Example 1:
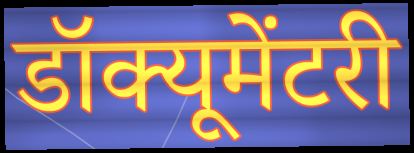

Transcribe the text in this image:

डॉक्यूमेंटरी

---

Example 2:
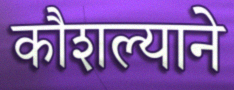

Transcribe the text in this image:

कौशल्याने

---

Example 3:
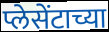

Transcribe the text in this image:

प्लेसेंटाच्या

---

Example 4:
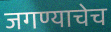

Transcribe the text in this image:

जगण्याचेच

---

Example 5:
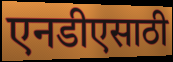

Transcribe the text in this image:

एनडीएसाठी